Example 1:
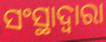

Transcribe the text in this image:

ସଂସ୍ଥାଦ୍ୱାରା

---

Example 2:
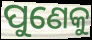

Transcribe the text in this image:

ପୁଣେକୁ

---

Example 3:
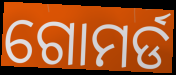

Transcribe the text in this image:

ଗୋମର୍ଡ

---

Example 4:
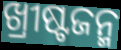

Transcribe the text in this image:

ଖ୍ରୀଷ୍ଟଜନ୍ମ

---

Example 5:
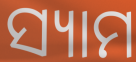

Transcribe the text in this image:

ସ୍ୟାମ